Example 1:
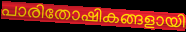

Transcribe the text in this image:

പാരിതോഷികങ്ങളായി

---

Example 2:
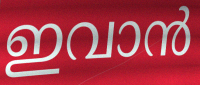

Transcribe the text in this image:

ഇവാൻ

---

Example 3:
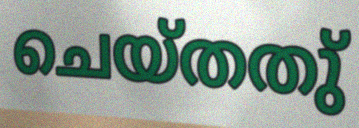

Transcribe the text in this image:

ചെയ്തതു്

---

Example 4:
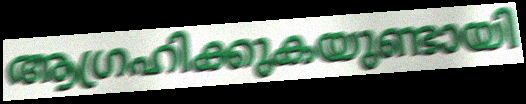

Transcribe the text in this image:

ആഗ്രഹിക്കുകയുണ്ടായി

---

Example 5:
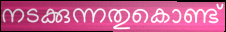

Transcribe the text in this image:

നടക്കുന്നതുകൊണ്ട്